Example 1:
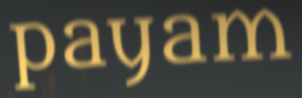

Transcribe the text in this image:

payam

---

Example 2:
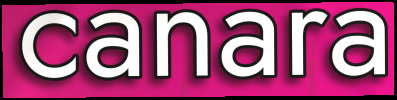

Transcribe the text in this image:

canara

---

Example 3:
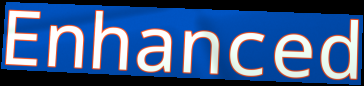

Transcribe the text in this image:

Enhanced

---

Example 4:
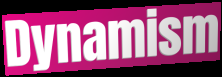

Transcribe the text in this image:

Dynamism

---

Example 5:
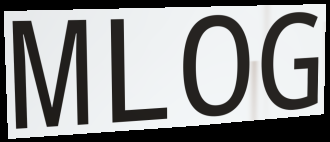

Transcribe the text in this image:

MLOG